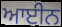
ਆਈਨ